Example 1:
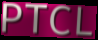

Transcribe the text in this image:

PTCL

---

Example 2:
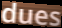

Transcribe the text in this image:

dues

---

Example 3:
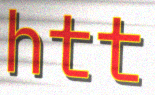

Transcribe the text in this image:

htt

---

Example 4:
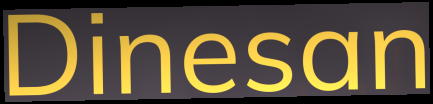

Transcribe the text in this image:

Dinesan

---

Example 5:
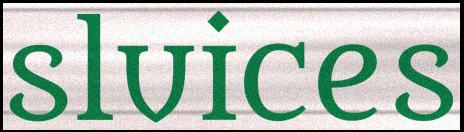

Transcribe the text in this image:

sluices